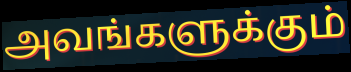
அவங்களுக்கும்